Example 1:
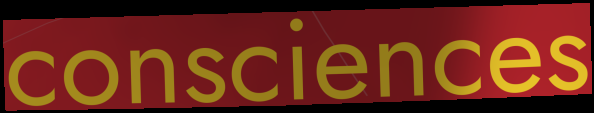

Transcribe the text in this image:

consciences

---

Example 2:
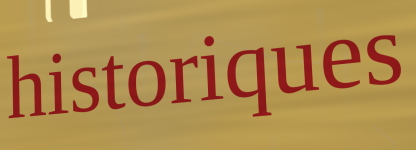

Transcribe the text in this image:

historiques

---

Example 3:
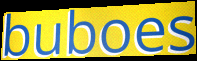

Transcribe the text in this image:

buboes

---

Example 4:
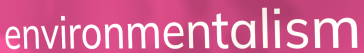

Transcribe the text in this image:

environmentalism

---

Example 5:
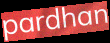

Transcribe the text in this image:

pardhan